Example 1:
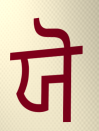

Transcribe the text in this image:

ਯੋ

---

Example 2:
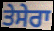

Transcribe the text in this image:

ਤੇਸੇਰਾ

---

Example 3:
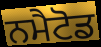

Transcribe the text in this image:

ਨਮੈਟੋਡ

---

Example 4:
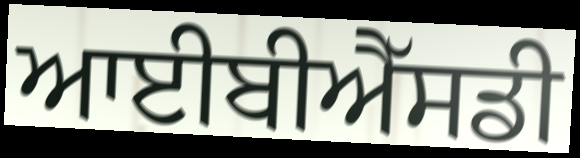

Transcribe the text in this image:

ਆਈਬੀਐੱਸਡੀ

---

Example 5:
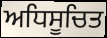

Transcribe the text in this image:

ਅਧਿਸੂਚਿਤ